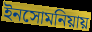
ইনসোমনিয়ায়